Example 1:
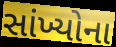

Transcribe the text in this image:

સાંખ્યોના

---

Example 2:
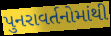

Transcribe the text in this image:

પુનરાવર્તનોમાંથી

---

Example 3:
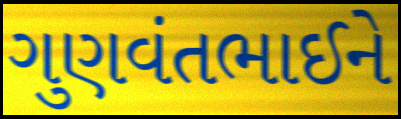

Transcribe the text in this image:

ગુણવંતભાઈને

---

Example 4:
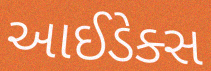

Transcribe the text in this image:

આઈડેક્સ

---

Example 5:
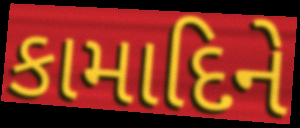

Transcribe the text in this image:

કામાદિને